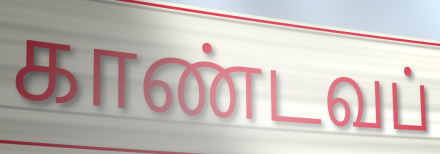
காண்டவப்